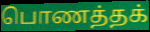
பொணத்தக்